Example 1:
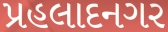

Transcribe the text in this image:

પ્રહલાદનગર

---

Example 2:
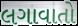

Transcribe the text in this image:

લગાવાતો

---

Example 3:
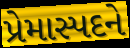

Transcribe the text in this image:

પ્રેમાસ્પદને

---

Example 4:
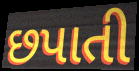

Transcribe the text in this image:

છપાતી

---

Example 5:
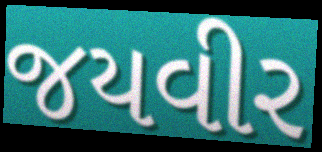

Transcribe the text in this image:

જયવીર